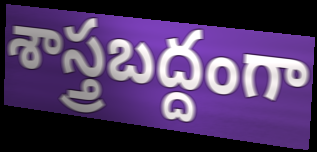
శాస్త్రబద్దంగా